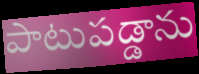
పాటుపడ్డాను